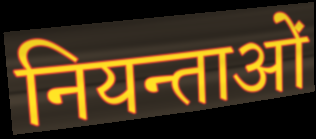
नियन्ताओं